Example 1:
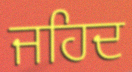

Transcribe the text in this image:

ਜਹਿਦ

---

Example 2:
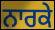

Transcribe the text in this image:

ਨਾਰਕੇ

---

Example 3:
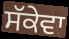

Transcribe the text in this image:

ਸੱਕੇਵਾ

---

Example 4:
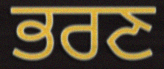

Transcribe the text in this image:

ਭਰਣ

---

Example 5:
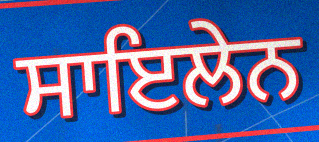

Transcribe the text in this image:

ਸਾਇਲੇਨ